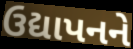
ઉદ્યાપનને